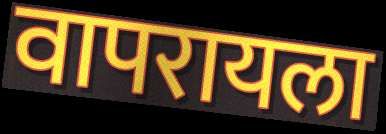
वापरायला